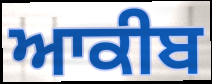
ਆਕੀਬ